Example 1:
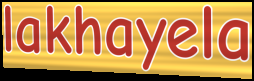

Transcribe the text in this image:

lakhayela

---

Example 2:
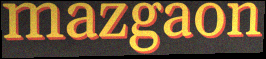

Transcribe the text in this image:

mazgaon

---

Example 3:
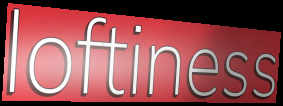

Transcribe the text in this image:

loftiness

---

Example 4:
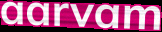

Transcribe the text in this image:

aarvam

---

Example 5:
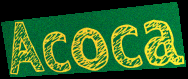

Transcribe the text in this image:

Acoca